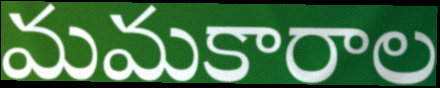
మమకారాల